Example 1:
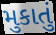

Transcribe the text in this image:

મુકાતું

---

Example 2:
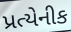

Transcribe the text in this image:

પ્રત્યેનીક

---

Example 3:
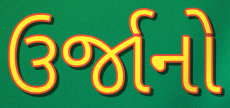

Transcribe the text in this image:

ઉર્જાનો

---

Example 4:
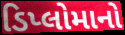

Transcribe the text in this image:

ડિપ્લોમાનો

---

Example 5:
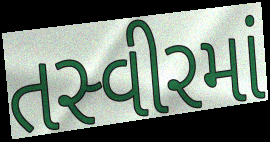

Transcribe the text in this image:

તસ્વીરમાં